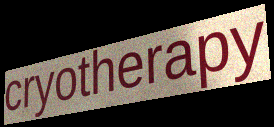
cryotherapy